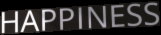
HAPPINESS